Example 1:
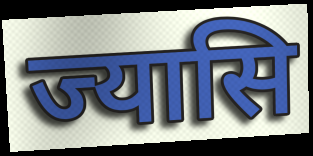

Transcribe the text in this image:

ज्यासि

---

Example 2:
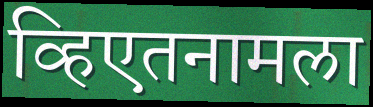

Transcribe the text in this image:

व्हिएतनामला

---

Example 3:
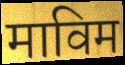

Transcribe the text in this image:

माविम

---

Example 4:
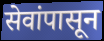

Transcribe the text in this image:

सेवांपासून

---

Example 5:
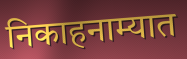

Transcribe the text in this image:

निकाहनाम्यात